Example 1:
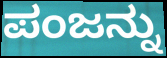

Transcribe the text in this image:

ಪಂಜನ್ನು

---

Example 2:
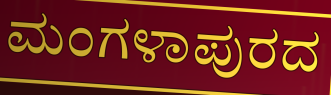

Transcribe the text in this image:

ಮಂಗಳಾಪುರದ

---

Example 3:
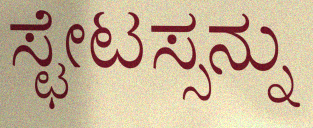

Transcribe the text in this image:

ಸ್ಟೇಟಸ್ಸನ್ನು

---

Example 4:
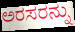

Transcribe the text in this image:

ಅರಸರನ್ನು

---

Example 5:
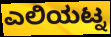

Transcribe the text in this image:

ಎಲಿಯಟ್ನ